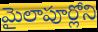
మైలాపూర్లోని